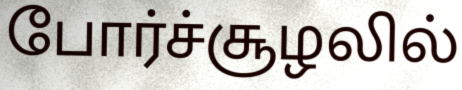
போர்ச்சூழலில்